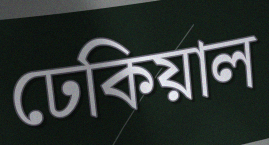
ঢেকিয়াল